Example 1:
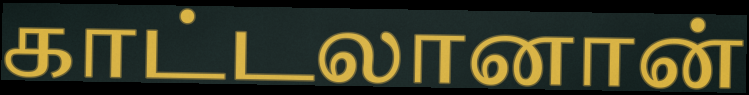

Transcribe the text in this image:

காட்டலானான்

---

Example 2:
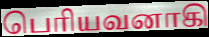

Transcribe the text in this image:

பெரியவனாகி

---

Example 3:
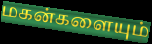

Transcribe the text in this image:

மகன்களையும்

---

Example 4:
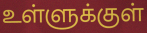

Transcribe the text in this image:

உள்ளுக்குள்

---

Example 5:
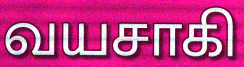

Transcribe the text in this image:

வயசாகி